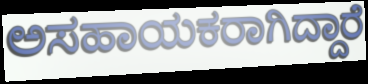
ಅಸಹಾಯಕರಾಗಿದ್ದಾರೆ